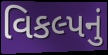
વિકલ્પનું